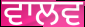
ਵਾਲਵ